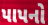
પાપનો